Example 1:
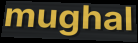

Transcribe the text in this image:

mughal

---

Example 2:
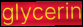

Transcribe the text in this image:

glycerin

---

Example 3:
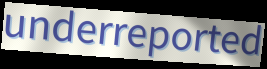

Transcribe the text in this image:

underreported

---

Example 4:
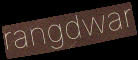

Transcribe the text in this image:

rangdwar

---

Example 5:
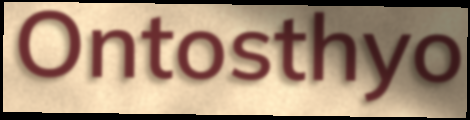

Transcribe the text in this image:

Ontosthyo